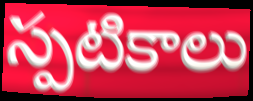
స్పటికాలు